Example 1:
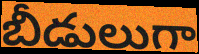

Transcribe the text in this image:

బీడులుగా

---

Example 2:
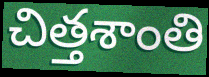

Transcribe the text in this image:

చిత్తశాంతి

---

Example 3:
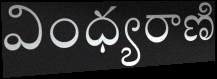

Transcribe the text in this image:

వింధ్యరాణి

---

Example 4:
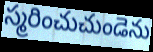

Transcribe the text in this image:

స్మరించుచుండెను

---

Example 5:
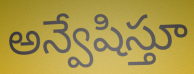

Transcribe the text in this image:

అన్వేషిస్తూ